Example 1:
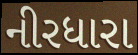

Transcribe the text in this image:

નીરધારા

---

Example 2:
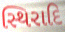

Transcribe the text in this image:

સ્થિરાદિ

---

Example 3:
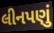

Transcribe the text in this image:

લીનપણું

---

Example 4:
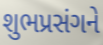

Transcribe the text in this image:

શુભપ્રસંગને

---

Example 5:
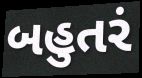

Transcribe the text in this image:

બહુતરં